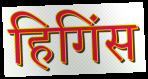
हिगिंस